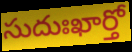
సుదుఃఖార్తో